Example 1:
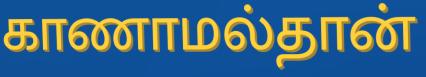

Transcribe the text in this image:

காணாமல்தான்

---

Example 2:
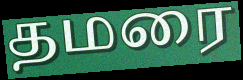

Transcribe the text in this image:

தமரை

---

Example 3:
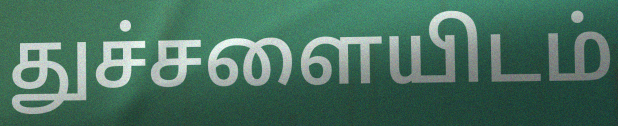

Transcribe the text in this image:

துச்சளையிடம்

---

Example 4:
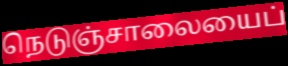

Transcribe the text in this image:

நெடுஞ்சாலையைப்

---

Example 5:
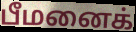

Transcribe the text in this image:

பீமனைக்